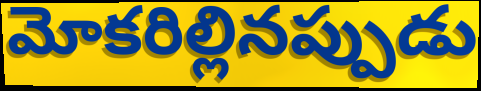
మోకరిల్లినప్పుడు